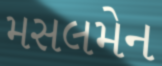
મસલમેન